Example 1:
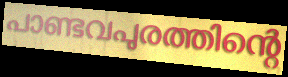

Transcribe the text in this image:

പാണ്ടവപുരത്തിന്റെ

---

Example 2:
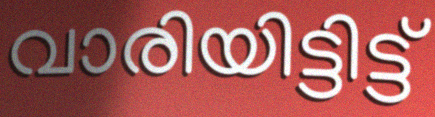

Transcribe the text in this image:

വാരിയിട്ടിട്ട്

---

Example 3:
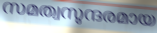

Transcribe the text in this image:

സമത്വസുന്ദരമായ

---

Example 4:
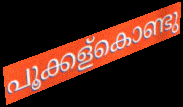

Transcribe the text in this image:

പൂക്കള്കൊണ്ടു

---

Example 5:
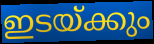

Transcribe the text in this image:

ഇടയ്ക്കും